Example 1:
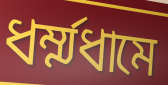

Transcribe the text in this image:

ধর্ম্মধামে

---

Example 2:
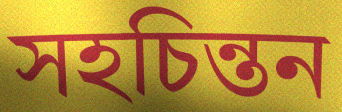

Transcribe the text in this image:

সহচিন্তন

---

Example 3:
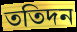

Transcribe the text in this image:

ততিদন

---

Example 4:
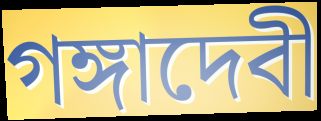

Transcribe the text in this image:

গঙ্গাদেবী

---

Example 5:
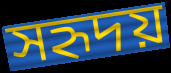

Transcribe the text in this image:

সহৃদয়